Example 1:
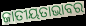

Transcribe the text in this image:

ଜାତୀୟତାଭାବର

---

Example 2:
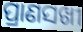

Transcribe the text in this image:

ପ୍ରାଣସଖୀ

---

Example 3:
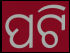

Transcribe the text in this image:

ପଟି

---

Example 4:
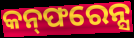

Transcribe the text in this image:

କନ୍‌ଫରେନ୍ସ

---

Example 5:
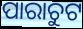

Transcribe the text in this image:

ପାରାଚୁଟ